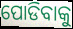
ପୋଡିବାକୁ